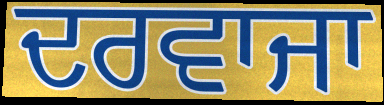
ਦਰਵਾਜਾ